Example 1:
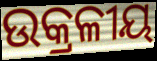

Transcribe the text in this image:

ଉକ୍ରଳୀୟ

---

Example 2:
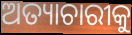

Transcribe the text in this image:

ଅତ୍ୟାଚାରୀକୁ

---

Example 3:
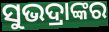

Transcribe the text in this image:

ସୁଭଦ୍ରାଙ୍କର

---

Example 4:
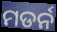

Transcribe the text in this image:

ମଡର୍ନ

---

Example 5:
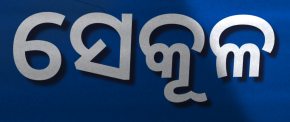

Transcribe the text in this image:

ସେକୂଳ